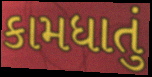
કામધાતું